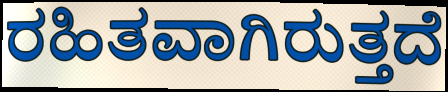
ರಹಿತವಾಗಿರುತ್ತದೆ